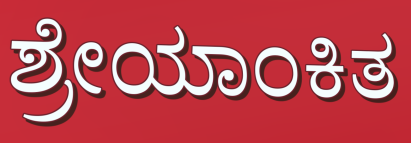
ಶ್ರೇಯಾಂಕಿತ